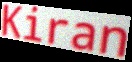
Kiran